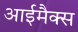
आईमैक्स